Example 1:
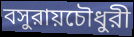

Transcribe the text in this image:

বসুরায়চৌধুরী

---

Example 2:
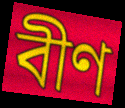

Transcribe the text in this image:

বীণ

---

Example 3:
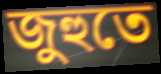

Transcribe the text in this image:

জুহুতে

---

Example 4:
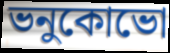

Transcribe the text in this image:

ভনুকোভো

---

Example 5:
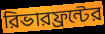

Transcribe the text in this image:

রিভারফ্রন্টের